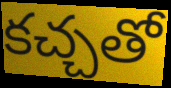
కచ్చతో